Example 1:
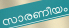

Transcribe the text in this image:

സാരണീയം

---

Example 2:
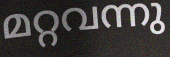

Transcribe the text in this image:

മറ്റവന്നു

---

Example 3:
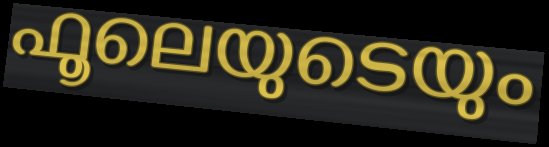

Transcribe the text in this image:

ഫൂലെയുടെയും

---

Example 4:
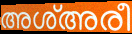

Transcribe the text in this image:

അശ്അരീ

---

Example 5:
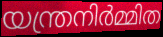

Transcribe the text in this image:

യന്ത്രനിർമ്മിത